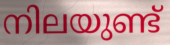
നിലയുണ്ട്